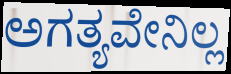
ಅಗತ್ಯವೇನಿಲ್ಲ